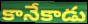
కానేకాడు